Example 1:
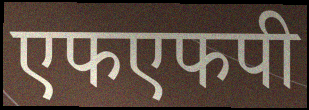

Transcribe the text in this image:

एफएफपी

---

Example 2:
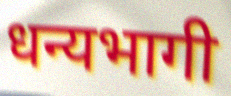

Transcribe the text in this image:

धन्यभागी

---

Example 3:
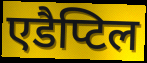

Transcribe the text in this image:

एडैप्टिल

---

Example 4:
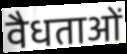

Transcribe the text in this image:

वैधताओं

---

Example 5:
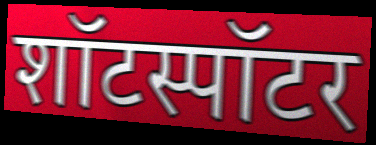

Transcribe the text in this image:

शॉटस्पॉटर